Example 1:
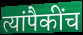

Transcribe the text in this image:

त्यांपैकींच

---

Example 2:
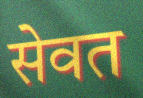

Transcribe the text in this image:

सेवत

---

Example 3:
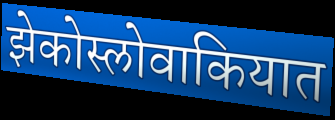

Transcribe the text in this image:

झेकोस्लोवाकियात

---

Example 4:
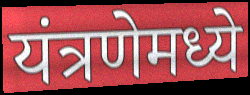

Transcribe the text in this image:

यंत्रणेमध्ये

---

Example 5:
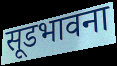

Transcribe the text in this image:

सूडभावना